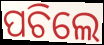
ପଚିଲେ